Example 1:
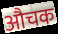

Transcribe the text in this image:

औचक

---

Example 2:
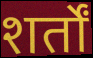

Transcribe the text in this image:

शर्तों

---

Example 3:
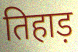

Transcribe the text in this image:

तिहाड़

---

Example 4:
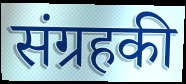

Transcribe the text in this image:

संग्रहकी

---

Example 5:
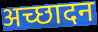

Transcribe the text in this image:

अच्छादन